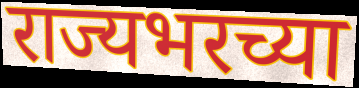
राज्यभरच्या